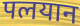
पलयान